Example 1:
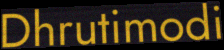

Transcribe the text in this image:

Dhrutimodi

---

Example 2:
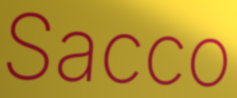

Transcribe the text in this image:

Sacco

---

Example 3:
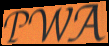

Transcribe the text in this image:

PWA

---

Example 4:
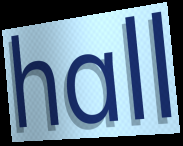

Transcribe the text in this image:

hall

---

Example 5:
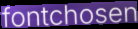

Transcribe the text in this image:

fontchosen